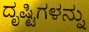
ದೃಷ್ಟಿಗಳನ್ನು